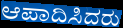
ಆಪಾದಿಸಿದರು